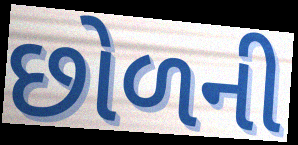
છોળની